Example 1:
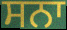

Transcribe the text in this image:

ਸਨਾ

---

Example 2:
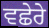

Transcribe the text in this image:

ਵਛੇਰੇ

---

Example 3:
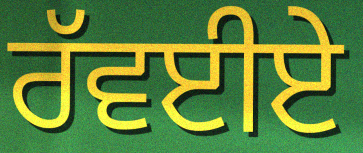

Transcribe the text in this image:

ਰੱਵਈਏ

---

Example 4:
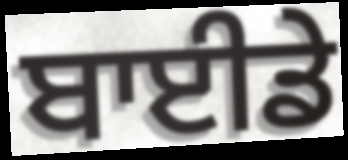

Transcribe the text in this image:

ਬਾਈਡੇ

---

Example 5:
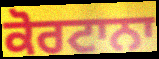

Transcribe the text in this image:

ਕੋਰਟਾਨਾ